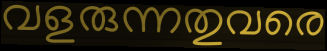
വളരുന്നതുവരെ